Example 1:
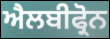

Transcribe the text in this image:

ਐਲਬੀਫ੍ਰੋਨ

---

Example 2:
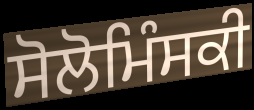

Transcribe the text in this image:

ਸੋਲੋਮਿੰਸਕੀ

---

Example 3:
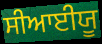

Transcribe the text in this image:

ਸੀਆਈਯੂ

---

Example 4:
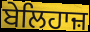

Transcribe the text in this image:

ਬੇਲਿਹਾਜ਼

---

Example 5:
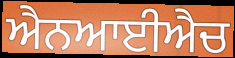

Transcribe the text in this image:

ਐਨਆਈਐਚ